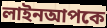
লাইনআপকে